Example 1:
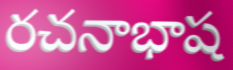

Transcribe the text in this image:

రచనాభాష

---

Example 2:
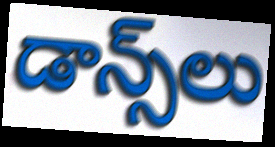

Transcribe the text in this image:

డాన్స్‌లు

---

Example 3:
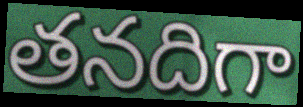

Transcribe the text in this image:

తనదిగా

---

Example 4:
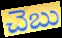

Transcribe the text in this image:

చెబు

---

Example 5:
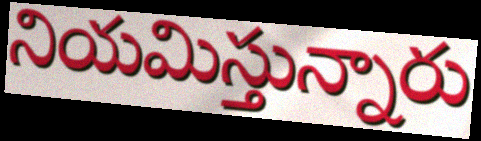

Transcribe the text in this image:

నియమిస్తున్నారు